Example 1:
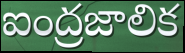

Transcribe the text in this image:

ఐంద్రజాలిక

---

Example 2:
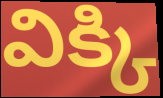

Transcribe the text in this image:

విక్కి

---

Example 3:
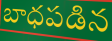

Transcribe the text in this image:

బాధపడిన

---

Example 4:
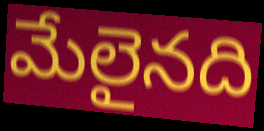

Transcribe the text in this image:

మేలైనది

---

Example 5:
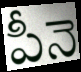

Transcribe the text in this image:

పీనె